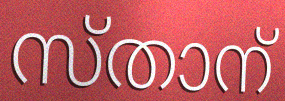
സ്താന്